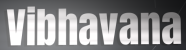
Vibhavana